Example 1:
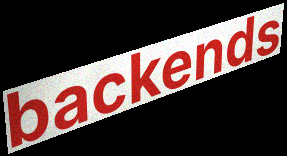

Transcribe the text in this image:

backends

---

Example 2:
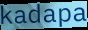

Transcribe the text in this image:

kadapa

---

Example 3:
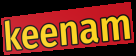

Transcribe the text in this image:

keenam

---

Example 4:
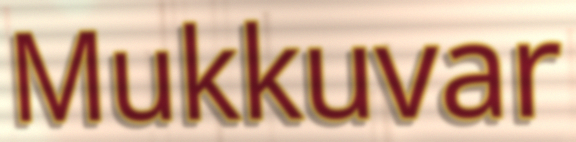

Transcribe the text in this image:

Mukkuvar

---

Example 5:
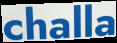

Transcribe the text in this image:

challa